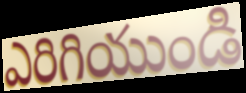
ఎరిగియుండి